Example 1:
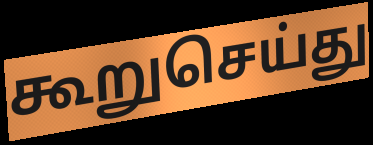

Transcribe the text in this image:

கூறுசெய்து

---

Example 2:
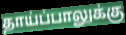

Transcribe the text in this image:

தாய்ப்பாலுக்கு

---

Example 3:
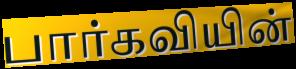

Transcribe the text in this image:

பார்கவியின்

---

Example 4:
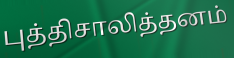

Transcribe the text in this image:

புத்திசாலித்தனம்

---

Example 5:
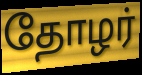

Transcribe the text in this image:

தோழர்